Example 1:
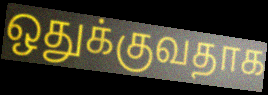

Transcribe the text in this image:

ஒதுக்குவதாக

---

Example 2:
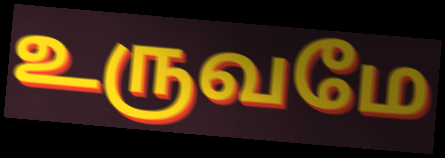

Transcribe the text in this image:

உருவமே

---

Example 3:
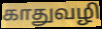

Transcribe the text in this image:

காதுவழி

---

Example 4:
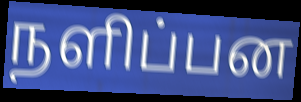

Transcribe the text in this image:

நளிப்பன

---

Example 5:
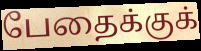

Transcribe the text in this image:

பேதைக்குக்